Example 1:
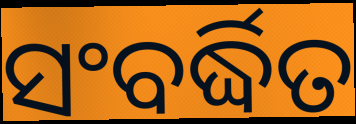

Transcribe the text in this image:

ସଂବର୍ଦ୍ଧିତ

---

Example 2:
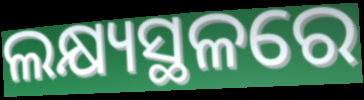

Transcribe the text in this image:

ଲକ୍ଷ୍ୟସ୍ଥଳରେ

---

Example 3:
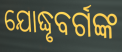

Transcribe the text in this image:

ଯୋଦ୍ଧୃବର୍ଗଙ୍କ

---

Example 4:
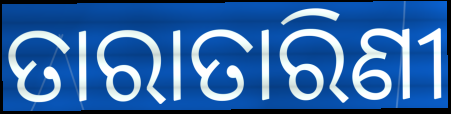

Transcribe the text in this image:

ତାରାତାରିଣୀ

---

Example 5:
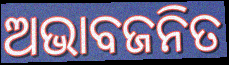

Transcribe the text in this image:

ଅଭାବଜନିତ